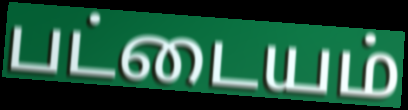
பட்டையம்